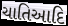
ચાતિઆદિ